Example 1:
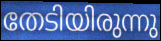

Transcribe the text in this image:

തേടിയിരുന്നു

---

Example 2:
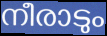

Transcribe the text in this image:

നീരാടും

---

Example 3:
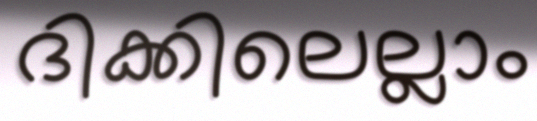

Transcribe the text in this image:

ദിക്കിലെല്ലാം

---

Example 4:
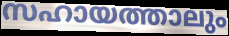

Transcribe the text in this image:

സഹായത്താലും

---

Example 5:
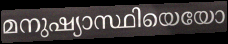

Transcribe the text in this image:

മനുഷ്യാസ്ഥിയെയോ